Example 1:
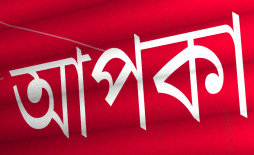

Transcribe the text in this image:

আপকা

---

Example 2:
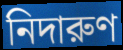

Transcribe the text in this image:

নিদারুণ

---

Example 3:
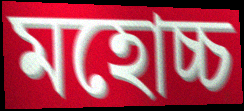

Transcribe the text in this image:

মহোচ্চ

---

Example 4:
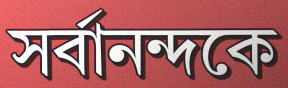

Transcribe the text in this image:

সর্বানন্দকে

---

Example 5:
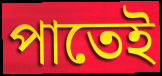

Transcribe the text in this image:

পাতেই